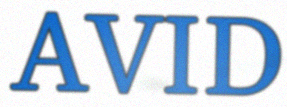
AVID